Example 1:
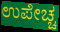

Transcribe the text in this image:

ಉಪೇಚ್ಚ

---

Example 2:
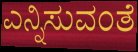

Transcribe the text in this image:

ಎನ್ನಿಸುವಂತೆ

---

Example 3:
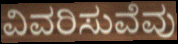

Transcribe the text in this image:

ವಿವರಿಸುವೆವು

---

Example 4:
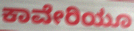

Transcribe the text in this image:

ಕಾವೇರಿಯೂ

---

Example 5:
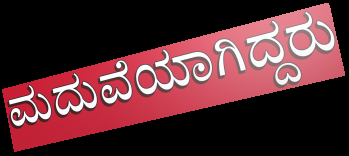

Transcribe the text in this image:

ಮದುವೆಯಾಗಿದ್ದರು